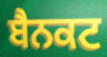
ਬੈਨਕਟ